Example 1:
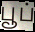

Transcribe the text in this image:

பூப்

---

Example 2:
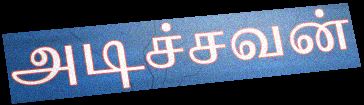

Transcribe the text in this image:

அடிச்சவன்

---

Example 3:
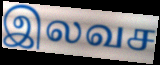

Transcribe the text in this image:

இலவச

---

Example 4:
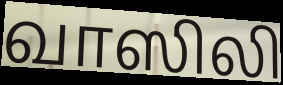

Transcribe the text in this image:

வாஸிலி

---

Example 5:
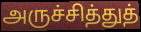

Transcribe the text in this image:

அருச்சித்துத்